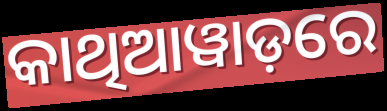
କାଥିଆୱାଡ଼ରେ